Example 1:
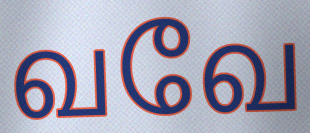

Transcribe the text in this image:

வவே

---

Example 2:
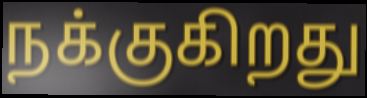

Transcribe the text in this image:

நக்குகிறது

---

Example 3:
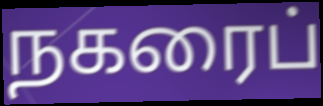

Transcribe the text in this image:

நகரைப்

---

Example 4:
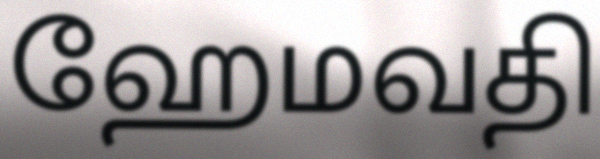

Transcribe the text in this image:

ஹேமவதி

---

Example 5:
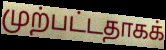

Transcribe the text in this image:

முற்பட்டதாகக்